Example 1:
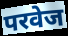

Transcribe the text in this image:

परवेज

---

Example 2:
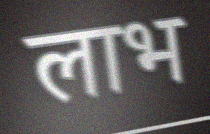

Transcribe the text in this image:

लाभ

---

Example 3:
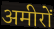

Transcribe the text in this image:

अमीरों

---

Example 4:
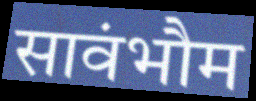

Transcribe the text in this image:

सावंभौम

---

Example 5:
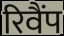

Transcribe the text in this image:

रिवैंप